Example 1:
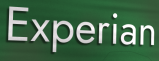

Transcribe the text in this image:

Experian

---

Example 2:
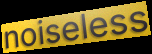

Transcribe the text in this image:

noiseless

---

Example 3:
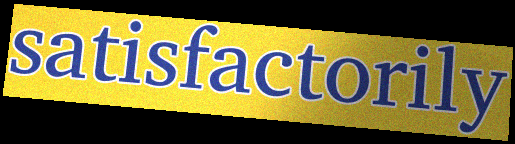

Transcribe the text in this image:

satisfactorily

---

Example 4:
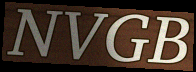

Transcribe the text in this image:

NVGB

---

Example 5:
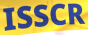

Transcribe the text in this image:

ISSCR